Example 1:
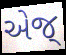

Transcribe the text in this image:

એજ્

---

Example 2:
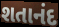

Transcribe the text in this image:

શતાનંદ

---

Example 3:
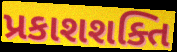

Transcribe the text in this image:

પ્રકાશશક્તિ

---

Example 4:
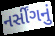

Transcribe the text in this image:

નર્સીંગનું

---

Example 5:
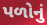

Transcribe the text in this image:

પળોનું